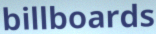
billboards